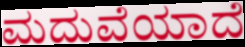
ಮದುವೆಯಾದೆ